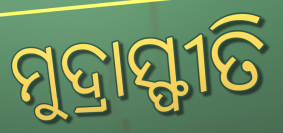
ମୁଦ୍ରାସ୍ଫୀତି